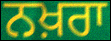
ਨਖ਼ਰਾ